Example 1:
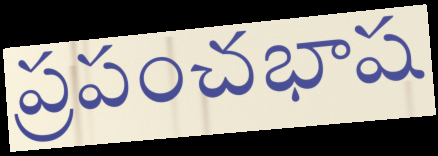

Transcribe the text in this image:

ప్రపంచభాష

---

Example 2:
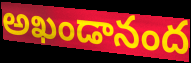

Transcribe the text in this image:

అఖండానంద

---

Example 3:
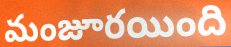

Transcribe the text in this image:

మంజూరయింది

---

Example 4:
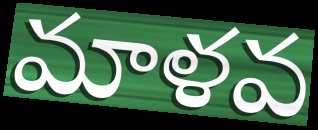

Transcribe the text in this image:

మాళవ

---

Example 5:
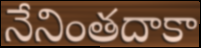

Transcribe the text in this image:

నేనింతదాకా